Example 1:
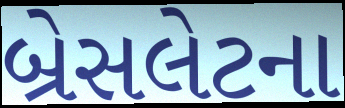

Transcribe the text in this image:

બ્રેસલેટના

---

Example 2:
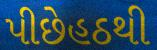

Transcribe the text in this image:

પીછેહઠથી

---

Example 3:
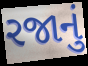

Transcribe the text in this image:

રજાનું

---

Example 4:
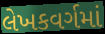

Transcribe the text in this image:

લેખકવર્ગમાં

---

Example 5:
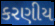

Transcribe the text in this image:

કરણીય